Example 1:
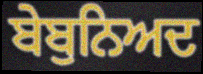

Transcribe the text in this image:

ਬੇਬੁਨਿਅਦ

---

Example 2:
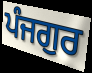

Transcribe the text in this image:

ਪੰਜਗੁਰ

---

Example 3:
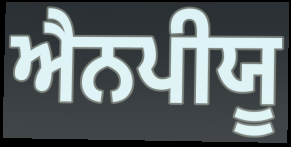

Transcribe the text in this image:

ਐਨਪੀਯੂ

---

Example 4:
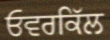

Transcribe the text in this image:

ਓਵਰਕਿੱਲ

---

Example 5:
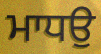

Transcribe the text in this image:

ਮਾਧਉ